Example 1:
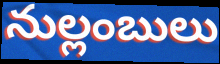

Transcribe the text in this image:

నుల్లంబులు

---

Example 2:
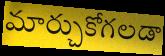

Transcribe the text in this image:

మార్చుకోగలడా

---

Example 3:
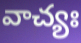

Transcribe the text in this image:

వాచ్యః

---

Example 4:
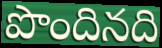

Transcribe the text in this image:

పొందినది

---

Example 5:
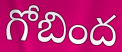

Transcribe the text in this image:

గోబింద